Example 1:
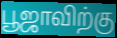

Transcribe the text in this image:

பூஜாவிற்கு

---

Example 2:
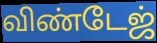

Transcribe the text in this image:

விண்டேஜ்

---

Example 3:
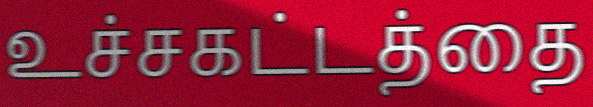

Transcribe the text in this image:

உச்சகட்டத்தை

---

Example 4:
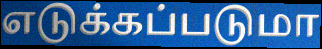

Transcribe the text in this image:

எடுக்கப்படுமா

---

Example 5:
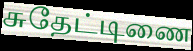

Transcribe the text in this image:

சுதேட்டிணை